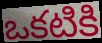
ఒకటికి